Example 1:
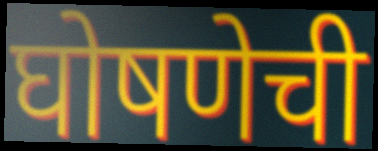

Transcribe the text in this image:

घोषणेची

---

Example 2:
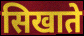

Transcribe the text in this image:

सिखाते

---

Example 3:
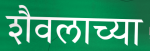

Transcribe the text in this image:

शैवलाच्या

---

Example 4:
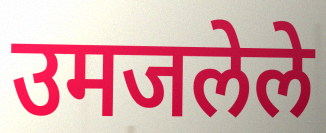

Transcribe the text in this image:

उमजलेले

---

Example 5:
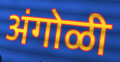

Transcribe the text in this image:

अंगोळी